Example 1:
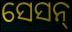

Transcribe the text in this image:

ସେସନ୍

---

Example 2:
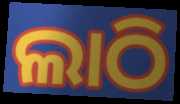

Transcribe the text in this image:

ଲାଠି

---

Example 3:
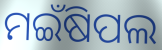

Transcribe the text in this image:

ମଇଁଷିପଲ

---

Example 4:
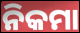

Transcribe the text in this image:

ନିକମା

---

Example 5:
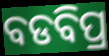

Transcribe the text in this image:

ବଡବିପ୍ର